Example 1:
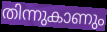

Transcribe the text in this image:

തിന്നുകാണും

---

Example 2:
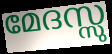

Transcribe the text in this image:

മേദസ്സു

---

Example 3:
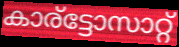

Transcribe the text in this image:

കാര്ട്ടോസാറ്റ്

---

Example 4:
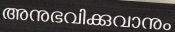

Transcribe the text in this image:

അനുഭവിക്കുവാനും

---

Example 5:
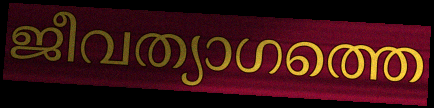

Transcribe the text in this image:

ജീവത്യാഗത്തെ